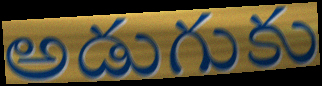
అడుగుకు